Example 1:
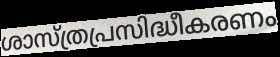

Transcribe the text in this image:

ശാസ്ത്രപ്രസിദ്ധീകരണം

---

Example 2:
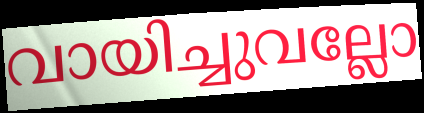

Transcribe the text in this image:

വായിച്ചുവല്ലോ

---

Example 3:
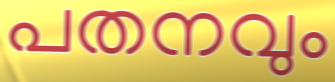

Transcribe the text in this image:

പതനവും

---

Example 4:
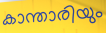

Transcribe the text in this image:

കാന്താരിയും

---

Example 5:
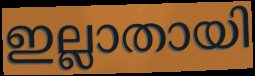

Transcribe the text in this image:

ഇല്ലാതായി